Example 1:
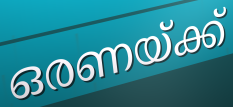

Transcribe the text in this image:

ഒരണയ്ക്ക്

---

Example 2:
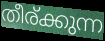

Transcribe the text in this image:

തീര്ക്കുന്ന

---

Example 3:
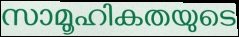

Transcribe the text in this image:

സാമൂഹികതയുടെ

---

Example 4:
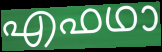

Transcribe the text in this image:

എഫഥാ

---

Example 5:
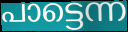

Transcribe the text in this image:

പാട്ടെന്ന